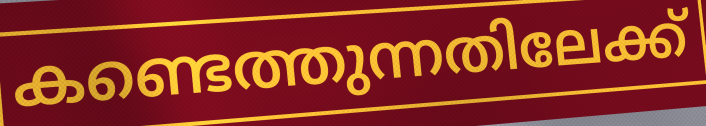
കണ്ടെത്തുന്നതിലേക്ക്